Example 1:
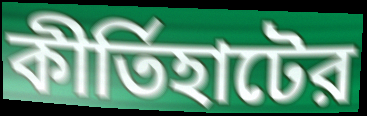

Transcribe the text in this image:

কীর্তিহাটের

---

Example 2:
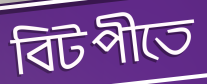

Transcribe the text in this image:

বিটপীতে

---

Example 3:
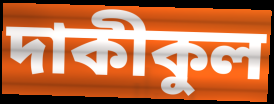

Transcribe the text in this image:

দাকীকুল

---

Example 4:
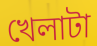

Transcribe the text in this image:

খেলাটা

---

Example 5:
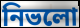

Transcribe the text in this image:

নিভলো